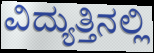
ವಿದ್ಯುತ್ತಿನಲ್ಲಿ